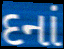
દનાં